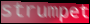
strumpet